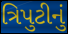
ત્રિપુટીનું